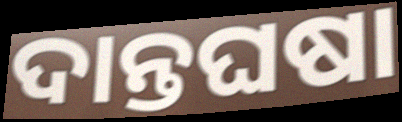
ଦାନ୍ତଘଷା